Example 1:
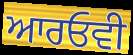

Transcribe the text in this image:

ਆਰਓਵੀ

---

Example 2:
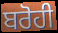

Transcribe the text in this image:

ਬਰੋਹੀ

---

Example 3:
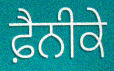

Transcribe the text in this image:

ਫ਼ੈਨੀਕੇ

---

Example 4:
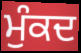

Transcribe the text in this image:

ਮੁੰਕਦ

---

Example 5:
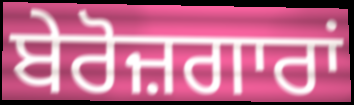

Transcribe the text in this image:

ਬੇਰੋਜ਼ਗਾਰਾਂ